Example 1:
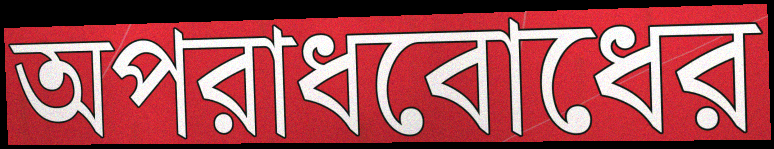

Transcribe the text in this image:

অপরাধবোধের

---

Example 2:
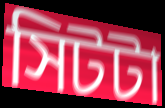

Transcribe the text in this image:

সিটটা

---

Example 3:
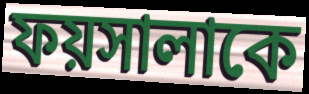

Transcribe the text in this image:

ফয়সালাকে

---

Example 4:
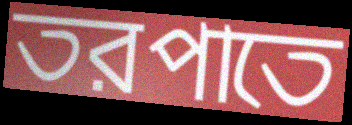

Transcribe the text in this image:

তরপাতে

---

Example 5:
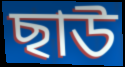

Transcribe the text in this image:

ছাউ